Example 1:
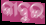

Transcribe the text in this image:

କାବୁଇ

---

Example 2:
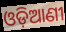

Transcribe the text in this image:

ଓଡ଼ିଆଣୀ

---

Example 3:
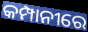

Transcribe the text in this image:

କମ୍ପାନୀରେ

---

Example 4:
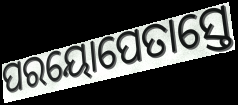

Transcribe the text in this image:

ପରୟୋପେତାସ୍ତେ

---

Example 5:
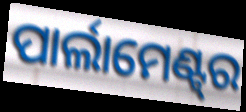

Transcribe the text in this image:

ପାର୍ଲାମେଣ୍ଟ୍‌ର